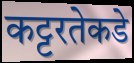
कट्टरतेकडे